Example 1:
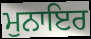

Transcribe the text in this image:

ਮੁਨਾਇਰ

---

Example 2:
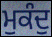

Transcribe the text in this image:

ਮੁਕੰਦੁ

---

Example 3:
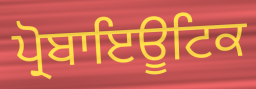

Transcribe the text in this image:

ਪ੍ਰੋਬਾਇਊਟਿਕ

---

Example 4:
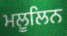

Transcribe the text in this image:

ਮਲੂਲਿਨ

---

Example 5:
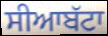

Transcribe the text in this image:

ਸੀਆਬੱਟਾ